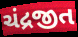
ચંદ્રજીત